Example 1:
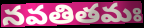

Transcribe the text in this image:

నవతితమః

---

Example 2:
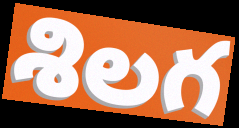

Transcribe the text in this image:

శిలగ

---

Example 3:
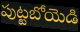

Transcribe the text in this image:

పుట్టబోయెడి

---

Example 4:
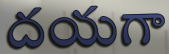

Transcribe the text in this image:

దయగా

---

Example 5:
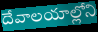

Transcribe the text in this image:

దేవాలయాల్లోని